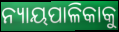
ନ୍ୟାୟପାଳିକାକୁ